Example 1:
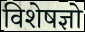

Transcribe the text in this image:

विशेषज्ञो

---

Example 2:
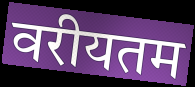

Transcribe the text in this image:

वरीयतम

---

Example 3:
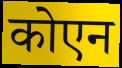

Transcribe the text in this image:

कोएन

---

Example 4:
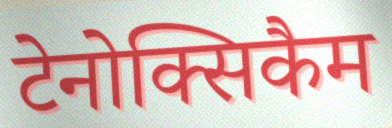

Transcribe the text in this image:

टेनोक्सिकैम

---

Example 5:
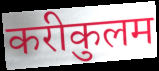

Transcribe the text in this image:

करीकुलम